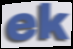
ek